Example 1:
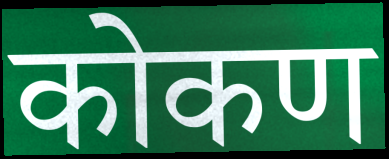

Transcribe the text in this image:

कोकण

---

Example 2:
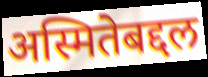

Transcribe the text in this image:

अस्मितेबद्दल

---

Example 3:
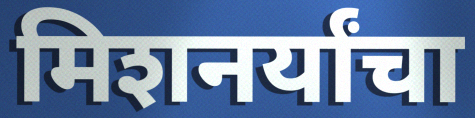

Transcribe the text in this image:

मिशनर्यांचा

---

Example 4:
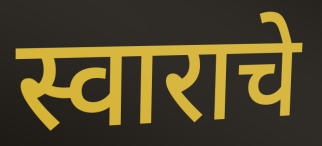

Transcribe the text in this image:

स्वाराचे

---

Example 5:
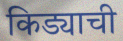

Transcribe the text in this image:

किड्याची